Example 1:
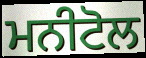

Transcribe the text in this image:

ਮਨੀਟੋਲ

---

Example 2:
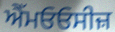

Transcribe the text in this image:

ਐੱਮਓਓਸੀਜ਼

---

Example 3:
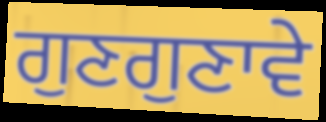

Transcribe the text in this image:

ਗੁਣਗੁਣਾਵੇ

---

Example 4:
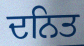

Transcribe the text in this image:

ਦਨਿਤ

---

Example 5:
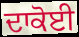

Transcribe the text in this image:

ਦਾਕੋਈ